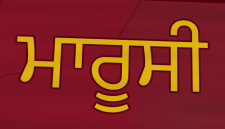
ਮਾਰੂਸੀ